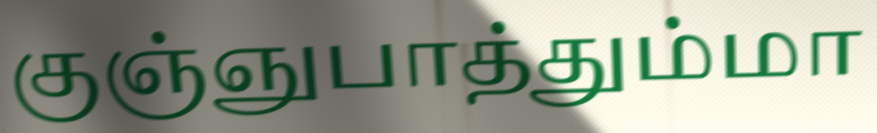
குஞ்ஞுபாத்தும்மா